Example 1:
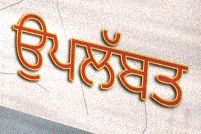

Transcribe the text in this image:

ਉਪਲੱਬਤ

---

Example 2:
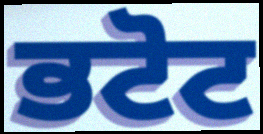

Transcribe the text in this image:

ਭਟੋਟ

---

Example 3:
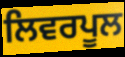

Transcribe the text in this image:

ਲਿਵਰਪੂਲ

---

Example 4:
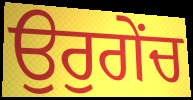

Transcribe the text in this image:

ਉਰੁਗੇਂਚ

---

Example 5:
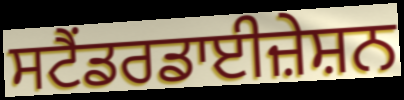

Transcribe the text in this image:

ਸਟੈਂਡਰਡਾਈਜ਼ੇਸ਼ਨ